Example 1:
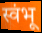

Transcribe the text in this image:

स्वंभू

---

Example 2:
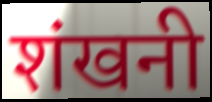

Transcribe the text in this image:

शंखनी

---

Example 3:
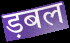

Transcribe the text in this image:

ड़बल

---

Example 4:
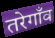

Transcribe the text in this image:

तरेगाँव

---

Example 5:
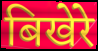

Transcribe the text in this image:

बिखेरे